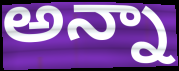
అన్నా